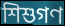
শিশুগণ